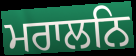
ਮਰਾਲਨਿ